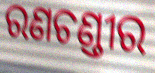
ରଣଚଣ୍ଡୀର